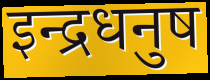
इन्द्रधनुष